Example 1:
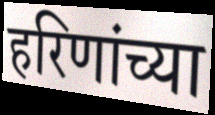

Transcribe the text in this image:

हरिणांच्या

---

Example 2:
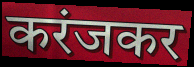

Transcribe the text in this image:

करंजकर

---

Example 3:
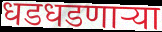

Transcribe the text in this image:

धडधडणाऱ्या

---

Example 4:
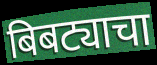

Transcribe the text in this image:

बिबट्याचा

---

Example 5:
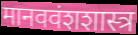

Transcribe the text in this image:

मानववंशशास्त्र